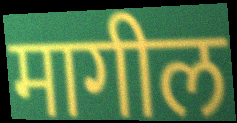
मागील